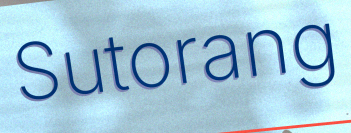
Sutorang